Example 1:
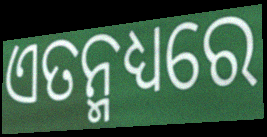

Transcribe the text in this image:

ଏତନ୍ମଧ୍ୟରେ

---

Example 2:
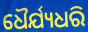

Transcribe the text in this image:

ଧୈର୍ଯ୍ୟଧରି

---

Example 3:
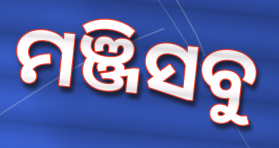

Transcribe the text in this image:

ମଞ୍ଜିସବୁ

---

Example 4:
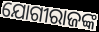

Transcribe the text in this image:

ଯୋଗୀରାଜଙ୍କ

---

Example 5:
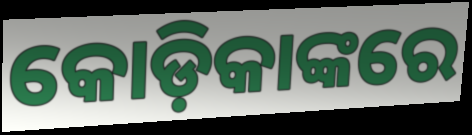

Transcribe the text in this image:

କୋଡ଼ିକାଙ୍କରେ